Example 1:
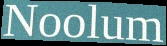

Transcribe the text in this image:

Noolum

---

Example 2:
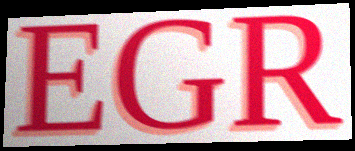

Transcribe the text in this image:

EGR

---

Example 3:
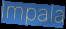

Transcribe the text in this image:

Impala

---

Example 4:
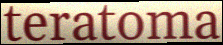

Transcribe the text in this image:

teratoma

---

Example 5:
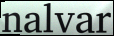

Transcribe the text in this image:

nalvar